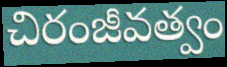
చిరంజీవత్వం